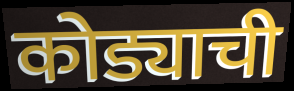
कोड्याची